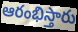
ఆరంభిస్తారు